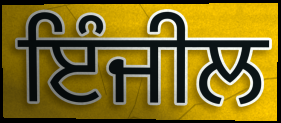
ਇੰਜੀਲ